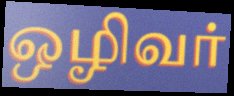
ஒழிவர்